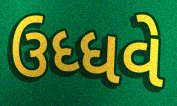
ઉધ્ધવે